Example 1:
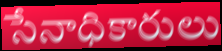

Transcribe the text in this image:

సేనాధికారులు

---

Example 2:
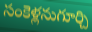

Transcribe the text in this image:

సంకెళ్లనుగూర్చి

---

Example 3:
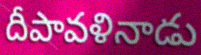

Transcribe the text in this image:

దీపావళినాడు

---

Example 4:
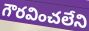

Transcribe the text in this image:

గౌరవించలేని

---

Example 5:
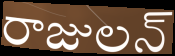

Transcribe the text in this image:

రాజులన్